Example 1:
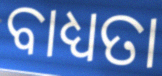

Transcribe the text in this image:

ବାଧ୍ୟତା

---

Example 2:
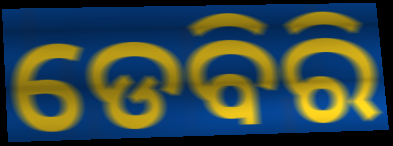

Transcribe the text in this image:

ଡେବିରି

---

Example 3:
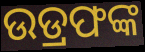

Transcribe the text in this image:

ଉଡ୍ରଫଙ୍କ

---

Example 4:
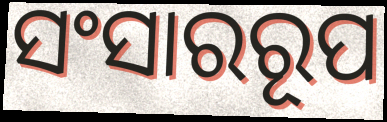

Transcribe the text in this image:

ସଂସାରରୂପ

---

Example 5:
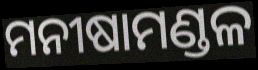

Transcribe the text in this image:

ମନୀଷାମଣ୍ଡଳ